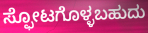
ಸ್ಫೋಟಗೊಳ್ಳಬಹುದು